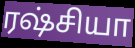
ரஷ்சியா